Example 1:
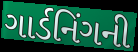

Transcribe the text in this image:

ગાર્ડનિંગની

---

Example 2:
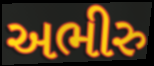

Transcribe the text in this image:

અભીરુ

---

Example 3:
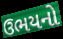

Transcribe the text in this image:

ઉભયનો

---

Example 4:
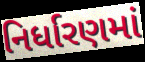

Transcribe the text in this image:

નિર્ધારણમાં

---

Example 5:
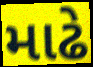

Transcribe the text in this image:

માઢે